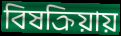
বিষক্রিয়ায়